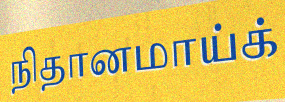
நிதானமாய்க்